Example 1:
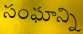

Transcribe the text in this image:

సంఘాన్ని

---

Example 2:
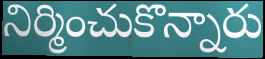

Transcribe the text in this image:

నిర్మించుకొన్నారు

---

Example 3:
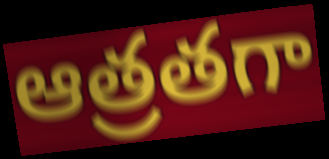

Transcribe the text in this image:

ఆత్రతగా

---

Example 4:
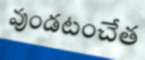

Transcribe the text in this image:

వుండటంచేత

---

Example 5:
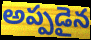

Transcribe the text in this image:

అప్పడైన